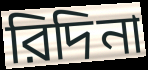
রিদিনা